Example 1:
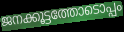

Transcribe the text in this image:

ജനക്കൂട്ടത്തോടൊപ്പം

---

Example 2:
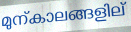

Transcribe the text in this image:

മുന്കാലങ്ങളില്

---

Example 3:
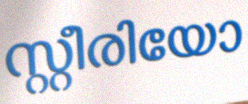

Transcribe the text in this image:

സ്റ്റീരിയോ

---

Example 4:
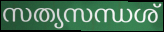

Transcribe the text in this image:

സത്യസന്ധശ്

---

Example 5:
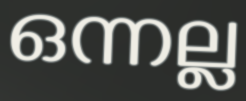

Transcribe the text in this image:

ഒന്നല്ല